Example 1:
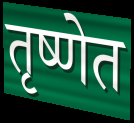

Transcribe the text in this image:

तृष्णेत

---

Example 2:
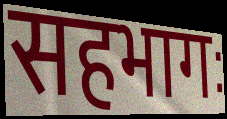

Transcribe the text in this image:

सहभागः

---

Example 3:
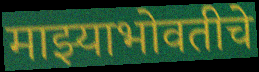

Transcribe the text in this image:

माझ्याभोवतीचे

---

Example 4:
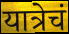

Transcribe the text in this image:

यात्रेचं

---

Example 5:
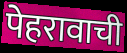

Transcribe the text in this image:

पेहरावाची